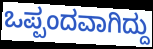
ಒಪ್ಪಂದವಾಗಿದ್ದು